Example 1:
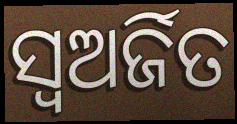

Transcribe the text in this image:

ସ୍ୱଅର୍ଜିତ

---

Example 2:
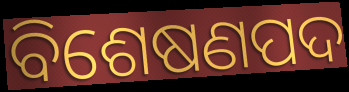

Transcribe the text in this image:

ବିଶେଷଣପଦ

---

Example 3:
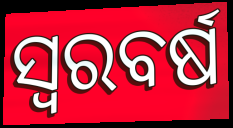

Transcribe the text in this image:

ସ୍ଵରବର୍ଷ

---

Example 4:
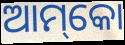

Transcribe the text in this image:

ଆମ୍‌କୋ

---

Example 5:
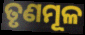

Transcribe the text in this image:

ତୃଣମୂଳ